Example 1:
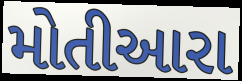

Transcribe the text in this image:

મોતીઆરા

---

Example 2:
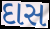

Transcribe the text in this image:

દાસ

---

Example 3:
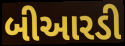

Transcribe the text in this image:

બીઆરડી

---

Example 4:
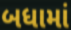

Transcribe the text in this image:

બધામાં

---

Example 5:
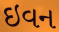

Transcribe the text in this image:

ઇવન